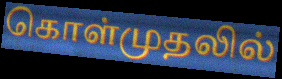
கொள்முதலில்